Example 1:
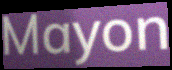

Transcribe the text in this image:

Mayon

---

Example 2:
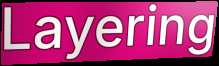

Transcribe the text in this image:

Layering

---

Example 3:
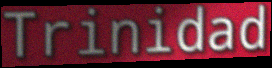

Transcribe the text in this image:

Trinidad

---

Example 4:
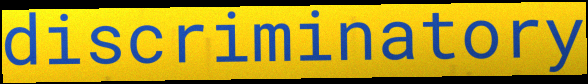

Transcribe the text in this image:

discriminatory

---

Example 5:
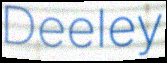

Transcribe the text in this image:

Deeley